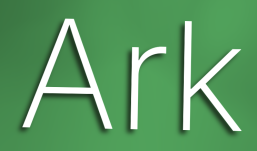
Ark